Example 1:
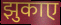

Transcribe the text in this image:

झुकाए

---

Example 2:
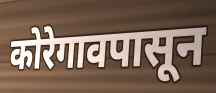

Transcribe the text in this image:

कोरेगावपासून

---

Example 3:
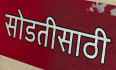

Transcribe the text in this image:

सोडतीसाठी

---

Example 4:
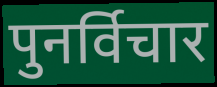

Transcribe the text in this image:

पुनर्विचार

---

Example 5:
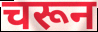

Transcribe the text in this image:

चरून